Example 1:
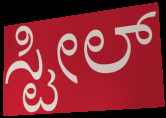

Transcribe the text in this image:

ಸ್ಟೀಲ್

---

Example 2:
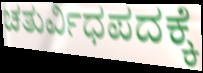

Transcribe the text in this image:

ಚತುರ್ವಿಧಪದಕ್ಕೆ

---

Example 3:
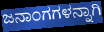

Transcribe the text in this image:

ಜನಾಂಗಗಳನ್ನಾಗಿ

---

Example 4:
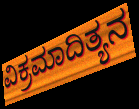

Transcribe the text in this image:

ವಿಕ್ರಮಾದಿತ್ಯನ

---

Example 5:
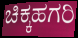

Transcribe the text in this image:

ಚಿಕ್ಕಹಗರಿ